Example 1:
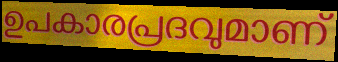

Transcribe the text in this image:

ഉപകാരപ്രദവുമാണ്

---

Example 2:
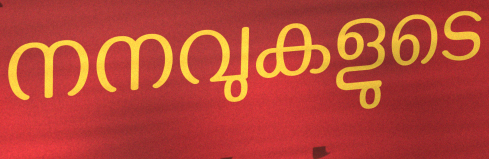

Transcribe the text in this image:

നനവുകളുടെ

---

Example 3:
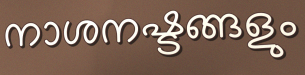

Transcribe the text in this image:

നാശനഷ്ടങ്ങളും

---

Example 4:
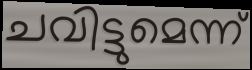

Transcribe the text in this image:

ചവിട്ടുമെന്ന്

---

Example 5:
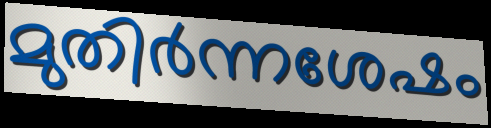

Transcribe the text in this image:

മുതിർന്നശേഷം